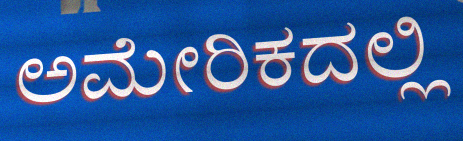
ಅಮೇರಿಕದಲ್ಲಿ